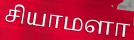
சியாமளா